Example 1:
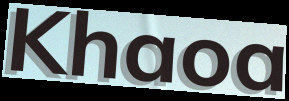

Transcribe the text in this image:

Khaoa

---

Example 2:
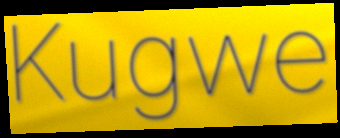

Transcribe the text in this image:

Kugwe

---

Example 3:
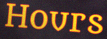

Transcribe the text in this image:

Hours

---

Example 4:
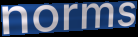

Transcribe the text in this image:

norms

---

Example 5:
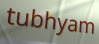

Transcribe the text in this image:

tubhyam